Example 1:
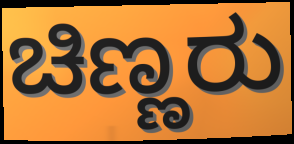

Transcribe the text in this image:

ಚಿಣ್ಣರು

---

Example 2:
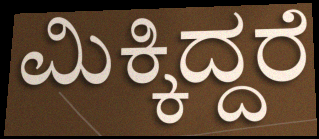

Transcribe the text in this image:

ಮಿಕ್ಕಿದ್ದರೆ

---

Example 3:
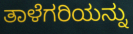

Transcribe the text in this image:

ತಾಳೆಗರಿಯನ್ನು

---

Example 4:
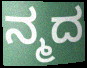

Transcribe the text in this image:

ನ್ಮದ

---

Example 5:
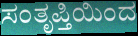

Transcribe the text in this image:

ಸಂತೃಪ್ತಿಯಿಂದ